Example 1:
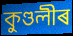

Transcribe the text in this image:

কুণ্ডলীৰ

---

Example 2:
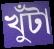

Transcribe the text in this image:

খুঁটা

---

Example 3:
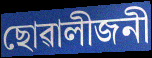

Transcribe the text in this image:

ছোৱালীজনী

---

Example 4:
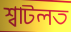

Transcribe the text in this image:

শ্বাটলত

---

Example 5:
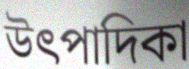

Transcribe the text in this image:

উৎপাদিকা